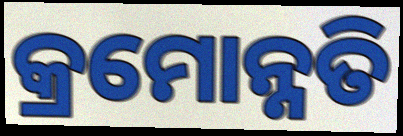
କ୍ରମୋନ୍ନତି